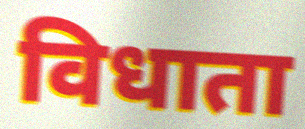
विधाता